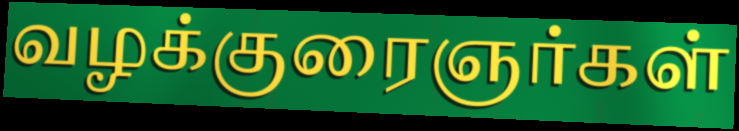
வழக்குரைஞர்கள்